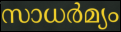
സാധർമ്യം